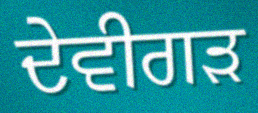
ਦੇਵੀਗੜ